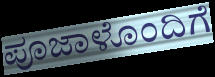
ಪೂಜಾಳೊಂದಿಗೆ